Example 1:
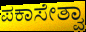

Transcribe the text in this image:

ಪಕಾಸೇತ್ವಾ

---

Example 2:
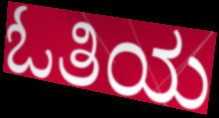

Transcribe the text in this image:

ಓತಿಯ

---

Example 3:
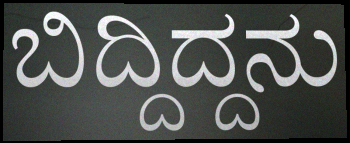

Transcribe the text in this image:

ಬಿದ್ದಿದ್ದನು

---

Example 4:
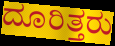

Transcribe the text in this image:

ದೂರಿತ್ತರು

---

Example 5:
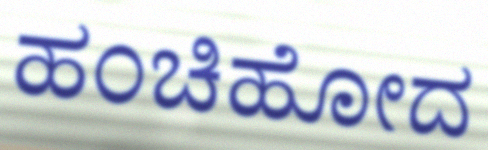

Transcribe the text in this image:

ಹಂಚಿಹೋದ